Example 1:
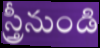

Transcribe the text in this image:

స్త్రీనుండి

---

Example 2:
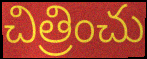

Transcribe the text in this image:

చిత్రించు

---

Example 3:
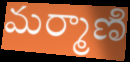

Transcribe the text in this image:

మర్మాణి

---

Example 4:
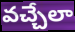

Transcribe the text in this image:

వచ్చేలా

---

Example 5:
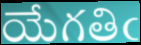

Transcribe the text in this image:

యేగతిఁ